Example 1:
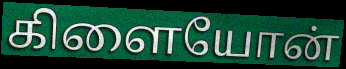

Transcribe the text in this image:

கிளையோன்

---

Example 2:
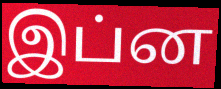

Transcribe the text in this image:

இப்ன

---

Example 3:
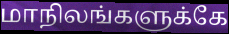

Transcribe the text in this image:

மாநிலங்களுக்கே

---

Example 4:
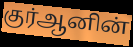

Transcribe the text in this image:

குர்ஆனின்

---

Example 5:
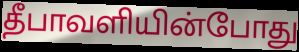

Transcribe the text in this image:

தீபாவளியின்போது